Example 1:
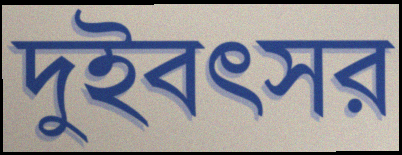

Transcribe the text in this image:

দুইবৎসর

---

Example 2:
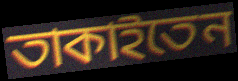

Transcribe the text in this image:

তাকাইতেন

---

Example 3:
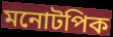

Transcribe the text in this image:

মনোটপিক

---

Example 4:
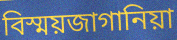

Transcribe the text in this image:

বিস্ময়জাগানিয়া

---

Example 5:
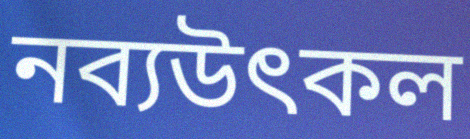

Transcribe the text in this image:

নব্যউৎকল